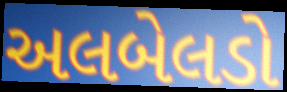
અલબેલડો